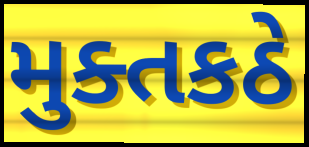
મુક્તકઠે